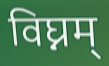
विघ्नम्